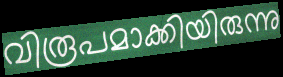
വിരൂപമാക്കിയിരുന്നു